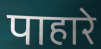
पाहारे